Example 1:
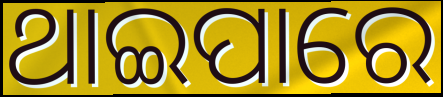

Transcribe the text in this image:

ଥାଇପାରେ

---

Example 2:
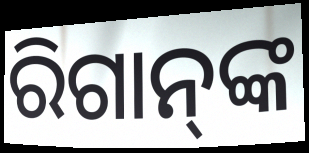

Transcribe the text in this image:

ରିଗାନ୍‌ଙ୍କ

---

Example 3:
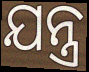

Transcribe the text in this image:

ଯନ୍ତ୍ର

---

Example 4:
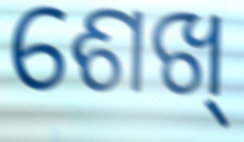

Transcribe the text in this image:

ଶେଖ୍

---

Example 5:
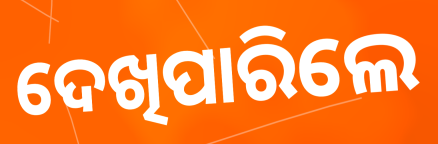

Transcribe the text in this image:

ଦେଖିପାରିଲେ